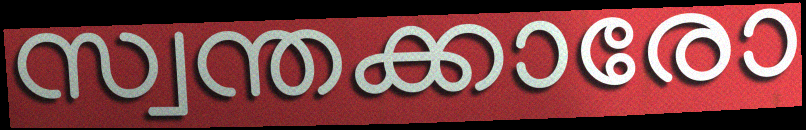
സ്വന്തക്കാരോ